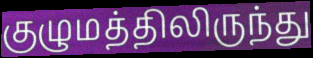
குழுமத்திலிருந்து